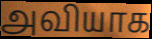
அவியாக